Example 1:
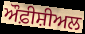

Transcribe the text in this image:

ਔਫ਼ੀਸ਼ੀਅਲ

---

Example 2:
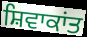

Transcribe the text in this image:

ਸ਼ਿਵਾਕਾਂਤ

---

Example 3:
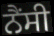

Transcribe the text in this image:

ਨੈਂਸੀ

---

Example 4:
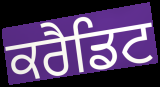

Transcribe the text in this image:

ਕਰੈਡਿਟ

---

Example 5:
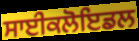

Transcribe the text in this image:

ਸਾਈਕਲੋਇਡਲ